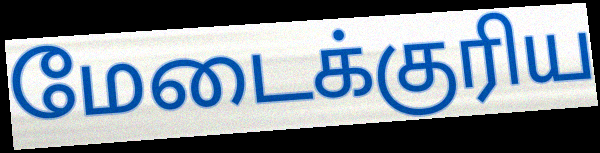
மேடைக்குரிய